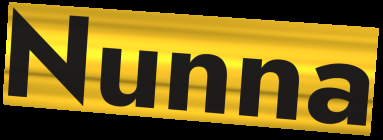
Nunna